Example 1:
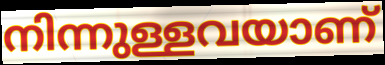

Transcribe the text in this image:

നിന്നുള്ളവയാണ്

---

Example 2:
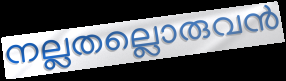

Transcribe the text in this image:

നല്ലതല്ലൊരുവൻ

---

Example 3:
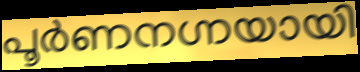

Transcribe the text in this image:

പൂർണനഗ്നയായി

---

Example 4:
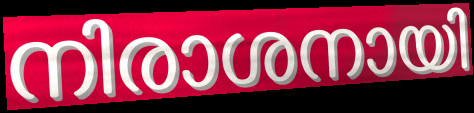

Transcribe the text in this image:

നിരാശനായി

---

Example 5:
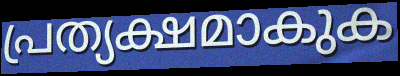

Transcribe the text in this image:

പ്രത്യക്ഷമാകുക